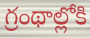
గ్రంథాల్లోకి